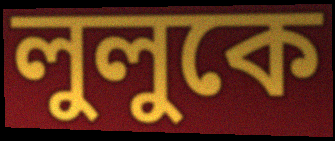
লুলুকে